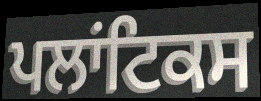
ਪਲਾਂਟਿਕਸ